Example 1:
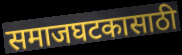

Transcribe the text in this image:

समाजघटकासाठी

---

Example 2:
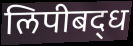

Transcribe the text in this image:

लिपीबद्ध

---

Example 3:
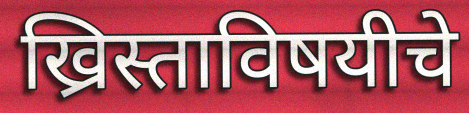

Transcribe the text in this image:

ख्रिस्ताविषयीचे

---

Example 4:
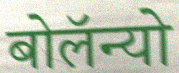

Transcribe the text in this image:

बोलॅन्यो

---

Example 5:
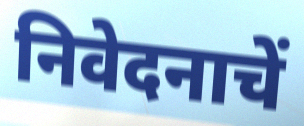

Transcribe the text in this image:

निवेदनाचें